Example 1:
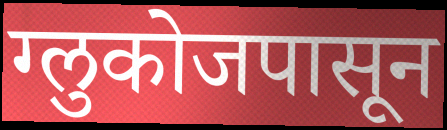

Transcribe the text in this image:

ग्लुकोजपासून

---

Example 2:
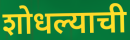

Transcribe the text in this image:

शोधल्याची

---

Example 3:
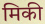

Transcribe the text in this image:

मिकी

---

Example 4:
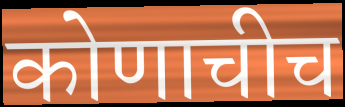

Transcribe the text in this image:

कोणाचीच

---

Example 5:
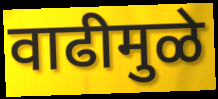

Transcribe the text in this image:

वाढीमुळे